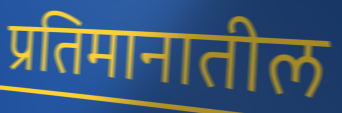
प्रतिमानातील